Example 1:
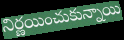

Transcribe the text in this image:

నిర్ణయించుకున్నాయి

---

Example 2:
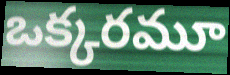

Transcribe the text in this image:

ఒక్కరమూ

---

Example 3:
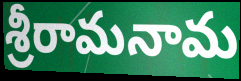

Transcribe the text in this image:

శ్రీరామనామ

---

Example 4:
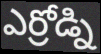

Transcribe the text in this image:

ఎర్రోడ్ని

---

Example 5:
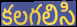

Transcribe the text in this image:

కలగలిసి